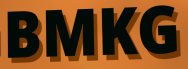
BMKG